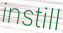
instill